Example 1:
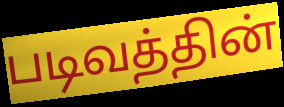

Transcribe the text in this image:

படிவத்தின்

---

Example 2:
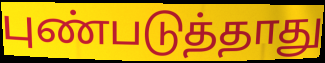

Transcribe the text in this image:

புண்படுத்தாது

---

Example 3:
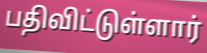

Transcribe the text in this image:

பதிவிட்டுள்ளார்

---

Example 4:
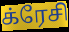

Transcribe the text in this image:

க்ரேசி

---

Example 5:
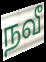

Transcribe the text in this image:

நவீ